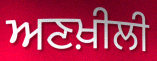
ਅਣਖ਼ੀਲੀ